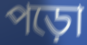
পড়ো